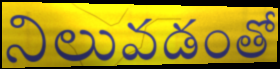
నిలువడంతో